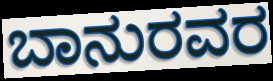
ಬಾನುರವರ